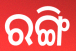
ରଙ୍ଗି